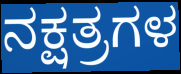
ನಕ್ಷತ್ರಗಳ